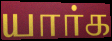
யார்க